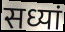
सध्यां